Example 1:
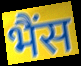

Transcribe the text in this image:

भैंस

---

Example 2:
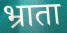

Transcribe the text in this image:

भ्राता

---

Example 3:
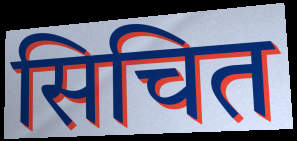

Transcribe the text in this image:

सिचित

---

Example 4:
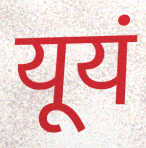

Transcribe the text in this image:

यूयं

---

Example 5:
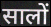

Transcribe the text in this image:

सालों